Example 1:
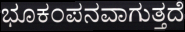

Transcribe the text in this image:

ಭೂಕಂಪನವಾಗುತ್ತದೆ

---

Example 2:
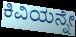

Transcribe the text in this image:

ಕಿವಿಯನ್ನೇ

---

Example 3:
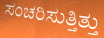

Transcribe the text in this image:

ಸಂಚರಿಸುತ್ತಿತ್ತು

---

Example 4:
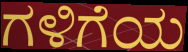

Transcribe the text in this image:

ಗಳಿಗೆಯ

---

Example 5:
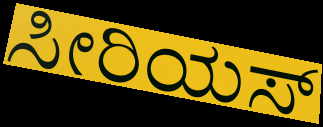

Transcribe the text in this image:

ಸೀರಿಯಸ್